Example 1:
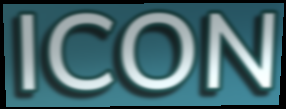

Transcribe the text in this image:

ICON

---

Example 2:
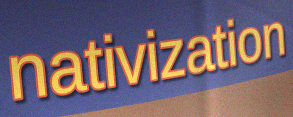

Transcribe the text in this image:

nativization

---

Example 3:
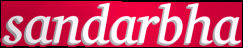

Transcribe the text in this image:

sandarbha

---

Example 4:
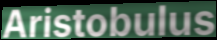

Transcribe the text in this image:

Aristobulus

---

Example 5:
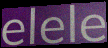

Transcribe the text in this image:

elele